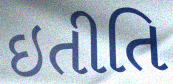
ઇતીતિ